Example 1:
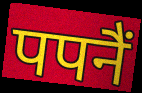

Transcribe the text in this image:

पपनैं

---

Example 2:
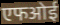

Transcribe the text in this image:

एफओई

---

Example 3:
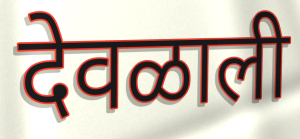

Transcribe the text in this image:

देवळाली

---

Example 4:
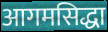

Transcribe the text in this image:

आगमसिद्धा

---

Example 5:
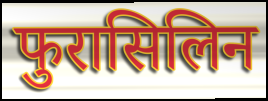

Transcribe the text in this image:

फुरासिलिन